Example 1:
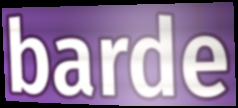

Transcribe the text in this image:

barde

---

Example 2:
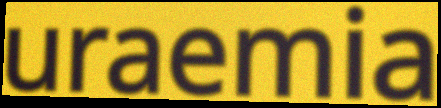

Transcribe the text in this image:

uraemia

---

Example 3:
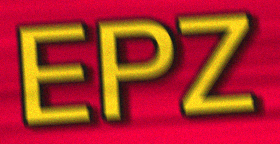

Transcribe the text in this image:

EPZ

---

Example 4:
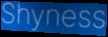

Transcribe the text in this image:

Shyness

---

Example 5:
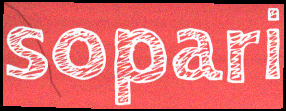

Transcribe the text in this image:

sopari